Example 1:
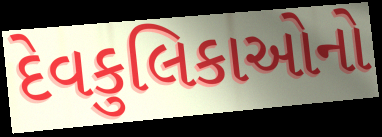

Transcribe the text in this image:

દેવકુલિકાઓનો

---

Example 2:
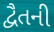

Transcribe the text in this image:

દ્વૈતની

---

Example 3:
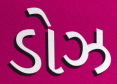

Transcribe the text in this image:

ડોઝ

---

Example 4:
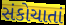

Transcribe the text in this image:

સંકોચાતાં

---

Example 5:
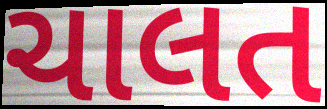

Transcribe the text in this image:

ચાલત